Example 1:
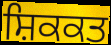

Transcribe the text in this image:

ਸ਼ਿਕਕਤ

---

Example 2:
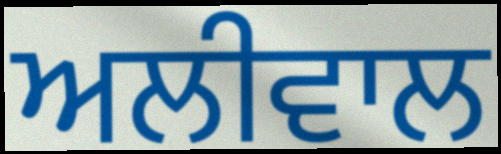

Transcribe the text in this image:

ਅਲੀਵਾਲ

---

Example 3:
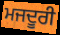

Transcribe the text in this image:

ਮਜਦੂਰੀ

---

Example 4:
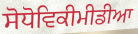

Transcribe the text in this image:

ਸੋਧੋਵਿਕੀਮੀਡੀਆ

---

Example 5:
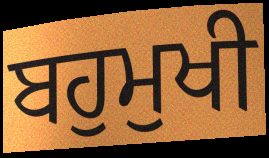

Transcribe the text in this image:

ਬਹੁਮੁਖੀ